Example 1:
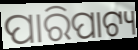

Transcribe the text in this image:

ପାରିପାଟ୍ୟ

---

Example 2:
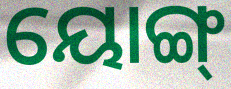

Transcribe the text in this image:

ୟୋଙ୍ଗ୍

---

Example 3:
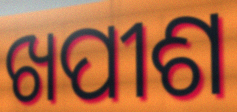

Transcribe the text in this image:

ଖପୀଶ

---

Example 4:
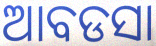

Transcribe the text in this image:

ଆବଡସା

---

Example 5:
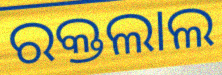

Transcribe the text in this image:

ରକ୍ତଲାଲ